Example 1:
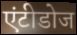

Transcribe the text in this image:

एंटीडोज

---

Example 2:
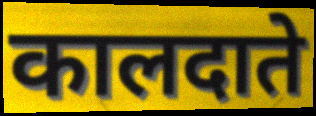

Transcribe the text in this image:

कालदाते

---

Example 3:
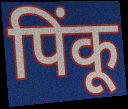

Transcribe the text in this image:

पिंकू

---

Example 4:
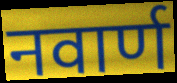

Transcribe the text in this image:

नवार्ण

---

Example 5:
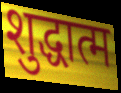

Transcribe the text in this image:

शुद्धात्म